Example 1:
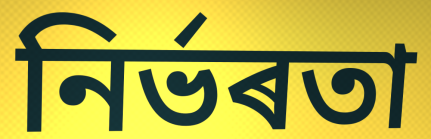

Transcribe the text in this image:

নিৰ্ভৰতা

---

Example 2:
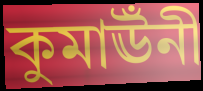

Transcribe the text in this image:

কুমাঊঁনী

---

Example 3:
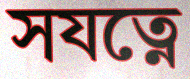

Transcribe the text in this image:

সযত্নে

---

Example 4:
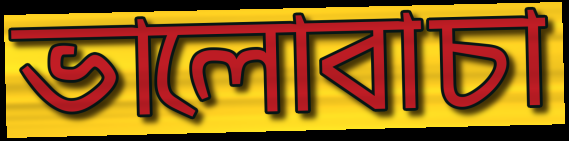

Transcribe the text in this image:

ভালোবাচা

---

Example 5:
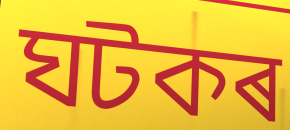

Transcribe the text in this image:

ঘটকৰ